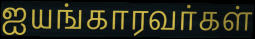
ஐயங்காரவர்கள்